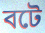
বটে